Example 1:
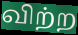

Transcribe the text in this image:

விற்ற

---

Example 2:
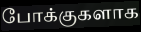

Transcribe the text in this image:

போக்குகளாக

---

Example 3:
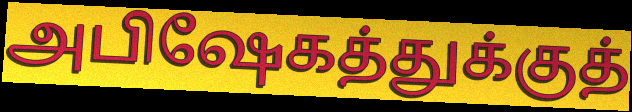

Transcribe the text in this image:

அபிஷேகத்துக்குத்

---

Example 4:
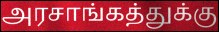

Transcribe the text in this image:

அரசாங்கத்துக்கு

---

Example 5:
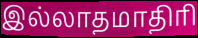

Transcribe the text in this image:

இல்லாதமாதிரி